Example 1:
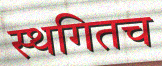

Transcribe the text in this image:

स्थगितच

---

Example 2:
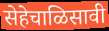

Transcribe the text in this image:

सेहेचाळिसावी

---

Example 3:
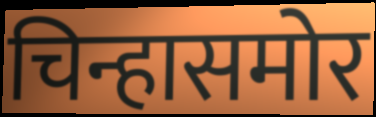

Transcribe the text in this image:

चिन्हासमोर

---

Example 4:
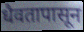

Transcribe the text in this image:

धैवतापासून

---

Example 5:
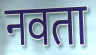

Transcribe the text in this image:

नवता